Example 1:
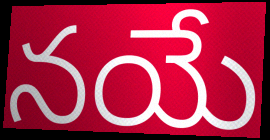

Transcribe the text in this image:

నయే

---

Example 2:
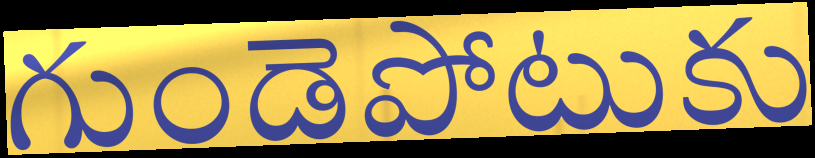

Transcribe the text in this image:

గుండెపోటుకు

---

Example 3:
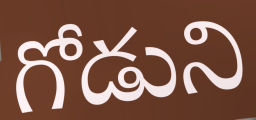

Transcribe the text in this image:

గోడుని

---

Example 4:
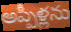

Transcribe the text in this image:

అప్పీళ్లను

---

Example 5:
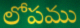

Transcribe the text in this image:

లోపము